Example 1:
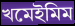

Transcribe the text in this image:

খমেইমিম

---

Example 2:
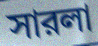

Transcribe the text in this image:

সারলা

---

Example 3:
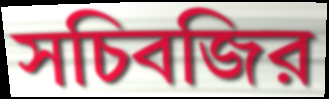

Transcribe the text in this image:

সচিবজির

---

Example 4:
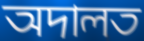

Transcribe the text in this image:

অদালত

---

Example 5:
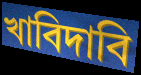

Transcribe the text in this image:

খাবিদাবি